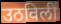
उठविलीं